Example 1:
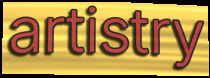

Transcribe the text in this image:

artistry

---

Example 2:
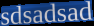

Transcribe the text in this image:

sdsadsad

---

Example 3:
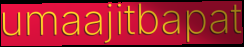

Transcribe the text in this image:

umaajitbapat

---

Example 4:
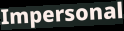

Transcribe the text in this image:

Impersonal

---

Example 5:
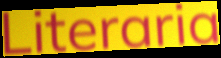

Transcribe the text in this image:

Literaria